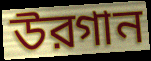
উরগান